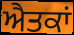
ਐਤਕਾਂ